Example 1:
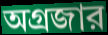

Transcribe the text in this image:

অগ্রজার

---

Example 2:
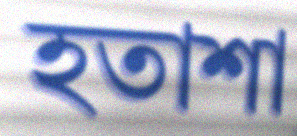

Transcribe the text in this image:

হতাশা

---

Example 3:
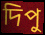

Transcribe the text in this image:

দিপু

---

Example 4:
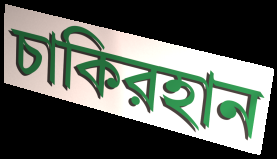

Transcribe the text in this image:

চাকিরহান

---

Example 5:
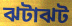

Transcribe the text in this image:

ঝটাঝট